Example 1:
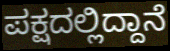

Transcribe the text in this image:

ಪಕ್ಷದಲ್ಲಿದ್ದಾನೆ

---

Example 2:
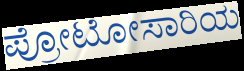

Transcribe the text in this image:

ಪ್ರೋಟೋಸಾರಿಯ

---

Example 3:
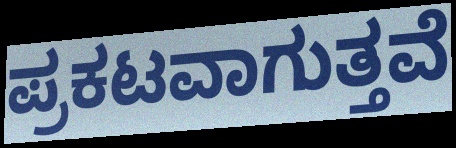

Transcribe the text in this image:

ಪ್ರಕಟವಾಗುತ್ತವೆ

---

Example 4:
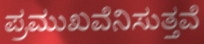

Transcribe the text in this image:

ಪ್ರಮುಖವೆನಿಸುತ್ತವೆ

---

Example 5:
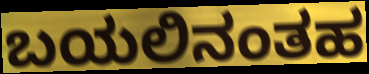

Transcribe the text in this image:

ಬಯಲಿನಂತಹ